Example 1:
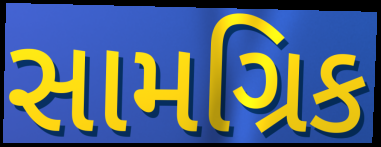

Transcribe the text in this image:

સામગ્રિક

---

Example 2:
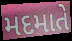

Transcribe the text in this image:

મદમાતે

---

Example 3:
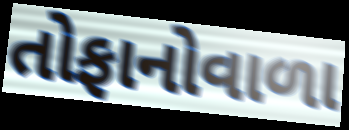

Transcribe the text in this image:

તોફાનોવાળા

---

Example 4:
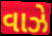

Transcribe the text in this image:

વાઝે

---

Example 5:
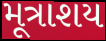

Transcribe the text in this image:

મૂત્રાશય